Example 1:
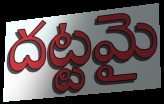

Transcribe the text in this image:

దట్టమై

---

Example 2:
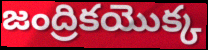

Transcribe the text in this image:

జంద్రికయొక్క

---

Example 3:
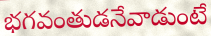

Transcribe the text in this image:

భగవంతుడనేవాడుంటే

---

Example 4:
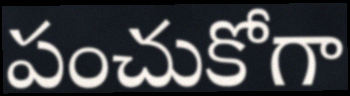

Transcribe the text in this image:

పంచుకోగా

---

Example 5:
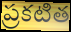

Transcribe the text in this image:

ప్రకటిత